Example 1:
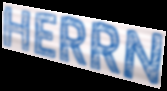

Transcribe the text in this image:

HERRN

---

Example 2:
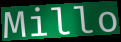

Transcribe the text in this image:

Millo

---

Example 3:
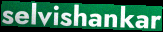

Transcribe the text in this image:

selvishankar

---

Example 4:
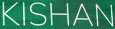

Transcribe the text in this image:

KISHAN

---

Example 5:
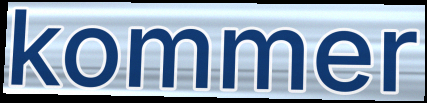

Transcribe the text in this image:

kommer